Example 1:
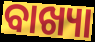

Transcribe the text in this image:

ବାଖ୍ୟା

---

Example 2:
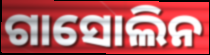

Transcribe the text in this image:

ଗାସୋଲିନ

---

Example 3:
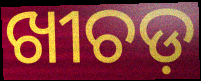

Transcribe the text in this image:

ଖୀଚଡ଼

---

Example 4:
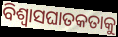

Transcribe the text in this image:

ବିଶ୍ୱାସଘାତକତାକୁ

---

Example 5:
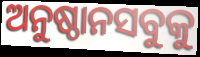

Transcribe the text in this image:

ଅନୁଷ୍ଠାନସବୁକୁ